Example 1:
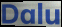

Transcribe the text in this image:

Dalu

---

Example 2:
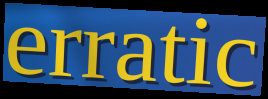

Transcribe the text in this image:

erratic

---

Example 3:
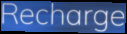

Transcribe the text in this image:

Recharge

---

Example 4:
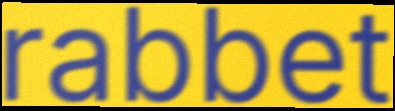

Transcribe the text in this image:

rabbet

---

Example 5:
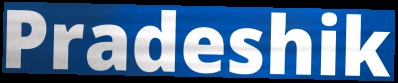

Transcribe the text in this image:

Pradeshik